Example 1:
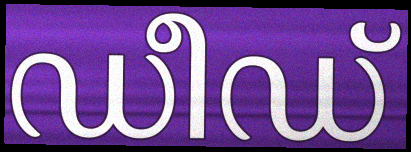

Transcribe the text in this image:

ഡീഡ്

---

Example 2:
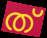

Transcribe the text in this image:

ത്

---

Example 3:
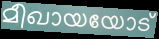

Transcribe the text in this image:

മീഖായയോട്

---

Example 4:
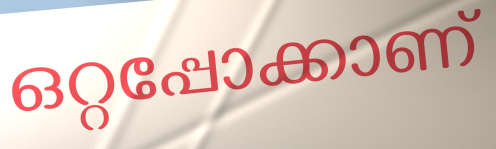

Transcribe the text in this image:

ഒറ്റപ്പോക്കാണ്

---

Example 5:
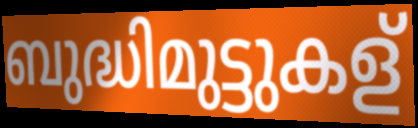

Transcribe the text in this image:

ബുദ്ധിമുട്ടുകള്